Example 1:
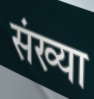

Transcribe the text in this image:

संख्‍या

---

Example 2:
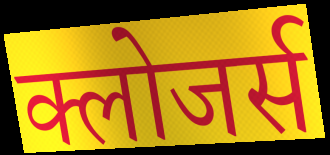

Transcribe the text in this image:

क्लोजर्स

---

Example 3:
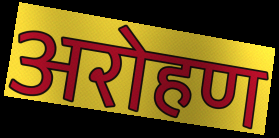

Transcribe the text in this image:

अरोहण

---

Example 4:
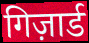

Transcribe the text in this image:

गिज़ार्ड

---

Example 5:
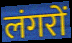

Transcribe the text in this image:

लंगरों